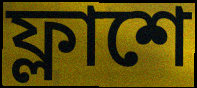
ফ্লাশে